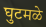
घुटमळे